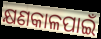
କ୍ଷଣକାଳପାଇଁ